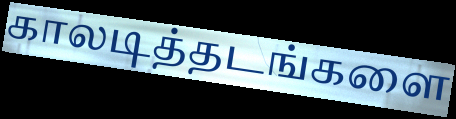
காலடித்தடங்களை